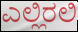
ಎಲ್ಲಿರಲಿ